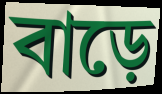
বাড়ে